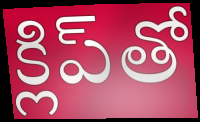
క్లిప్‌తో